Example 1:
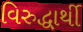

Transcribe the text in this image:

વિરુદ્ધાર્થી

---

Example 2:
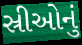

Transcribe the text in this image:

સ્રીઓનું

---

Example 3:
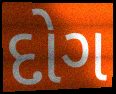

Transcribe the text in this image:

દોગ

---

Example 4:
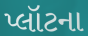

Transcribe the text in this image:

પ્લૉટના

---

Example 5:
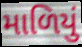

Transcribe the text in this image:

માળિયું